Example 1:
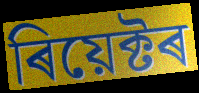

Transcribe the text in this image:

ৰিয়েক্টৰ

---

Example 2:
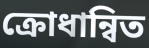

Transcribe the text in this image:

ক্ৰোধান্বিত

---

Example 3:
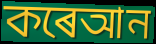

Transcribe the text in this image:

কৰেআন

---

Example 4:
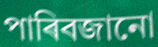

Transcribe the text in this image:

পাৰিবজানো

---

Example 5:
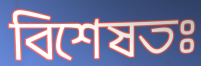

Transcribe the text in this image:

বিশেষতঃ